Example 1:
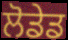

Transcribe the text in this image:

ਲੋਡੇਡ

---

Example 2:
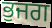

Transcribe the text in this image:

ਭੁਜਗ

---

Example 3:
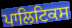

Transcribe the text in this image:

ਪਾਲਿਟਿਕਸ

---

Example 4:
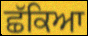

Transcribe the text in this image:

ਛੱਕਿਆ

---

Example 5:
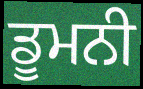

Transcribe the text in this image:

ਡੂਮਨੀ